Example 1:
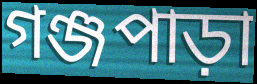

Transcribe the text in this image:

গঞ্জপাড়া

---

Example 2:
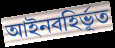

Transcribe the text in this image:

আইনবহির্ভূত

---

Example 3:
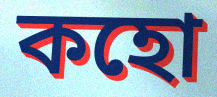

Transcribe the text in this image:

কহো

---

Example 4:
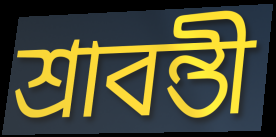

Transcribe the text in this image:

শ্রাবন্তী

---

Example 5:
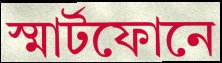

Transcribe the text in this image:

স্মার্টফোনে